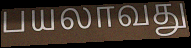
பயலாவது